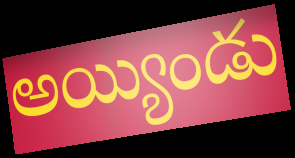
అయ్యిండు